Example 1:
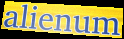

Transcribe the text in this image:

alienum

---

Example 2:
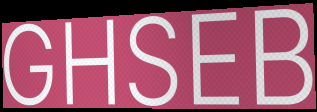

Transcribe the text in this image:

GHSEB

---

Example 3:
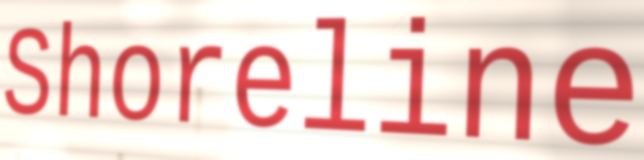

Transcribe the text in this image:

Shoreline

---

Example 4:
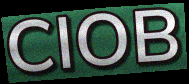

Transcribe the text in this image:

CIOB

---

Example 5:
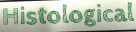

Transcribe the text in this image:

Histological